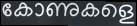
കോണുകളെ